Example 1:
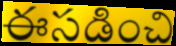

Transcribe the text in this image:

ఈసడించి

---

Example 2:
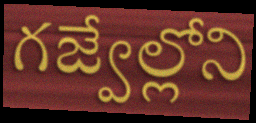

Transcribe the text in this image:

గజ్వేల్లోని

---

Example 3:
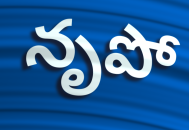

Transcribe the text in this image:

నృపో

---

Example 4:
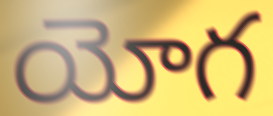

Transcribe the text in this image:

యోగ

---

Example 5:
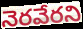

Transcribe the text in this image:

నెరవేరని